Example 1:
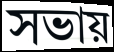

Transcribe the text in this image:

সভায়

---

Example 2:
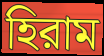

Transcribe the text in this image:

হিরাম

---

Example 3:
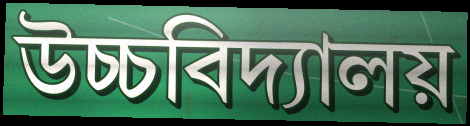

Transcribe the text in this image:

উচ্চবিদ্যালয়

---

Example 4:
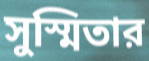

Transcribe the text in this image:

সুস্মিতার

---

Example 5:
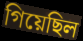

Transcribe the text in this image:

গিয়েছিল